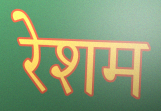
रेशम